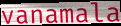
vanamala